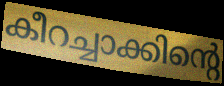
കീറച്ചാക്കിന്റെ